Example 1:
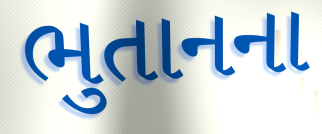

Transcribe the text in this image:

ભુતાનના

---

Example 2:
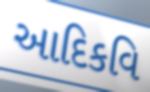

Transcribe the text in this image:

આદિકવિ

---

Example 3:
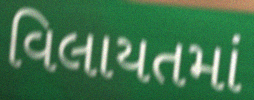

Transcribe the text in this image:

વિલાયતમાં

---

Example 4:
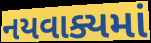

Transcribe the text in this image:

નયવાક્યમાં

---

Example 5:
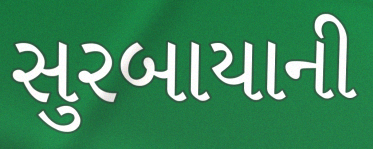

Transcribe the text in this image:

સુરબાયાની